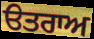
ੳਤਰਾਅ